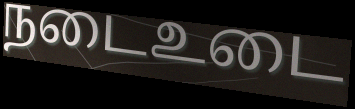
நடைஉடை